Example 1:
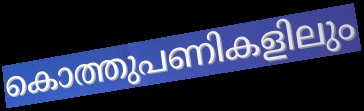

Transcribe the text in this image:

കൊത്തുപണികളിലും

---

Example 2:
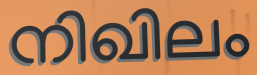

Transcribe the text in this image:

നിഖിലം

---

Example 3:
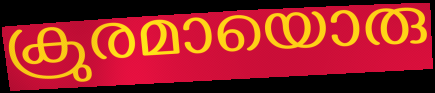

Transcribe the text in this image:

ക്രുരമായൊരു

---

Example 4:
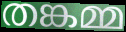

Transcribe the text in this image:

തങ്കമ്മ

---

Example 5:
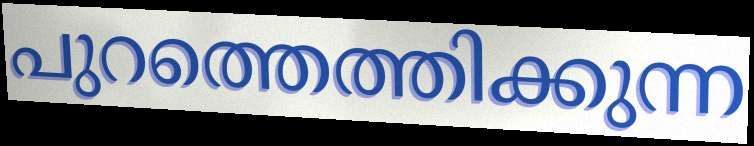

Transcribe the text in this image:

പുറത്തെത്തിക്കുന്ന